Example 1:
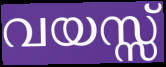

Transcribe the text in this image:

വയസ്സ്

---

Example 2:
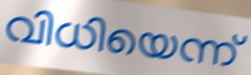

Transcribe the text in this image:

വിധിയെന്ന്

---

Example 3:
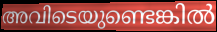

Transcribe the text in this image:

അവിടെയുണ്ടെങ്കിൽ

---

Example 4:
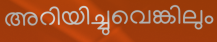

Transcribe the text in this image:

അറിയിച്ചുവെങ്കിലും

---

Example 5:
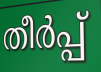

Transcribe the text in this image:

തീർപ്പ്